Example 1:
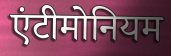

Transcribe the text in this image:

एंटीमोनियम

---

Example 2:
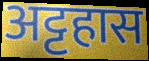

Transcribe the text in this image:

अट्टहास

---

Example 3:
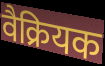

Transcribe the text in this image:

वैक्रियक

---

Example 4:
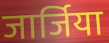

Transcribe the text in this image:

जार्जिया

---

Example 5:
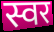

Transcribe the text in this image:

स्वर